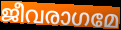
ജീവരാഗമേ